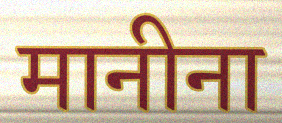
मानीना